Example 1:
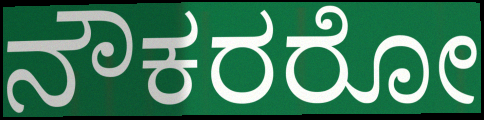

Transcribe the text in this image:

ನೌಕರರೋ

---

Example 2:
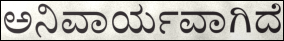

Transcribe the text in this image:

ಅನಿವಾರ್ಯವಾಗಿದೆ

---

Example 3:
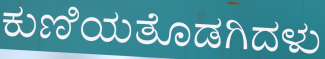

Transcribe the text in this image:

ಕುಣಿಯತೊಡಗಿದಳು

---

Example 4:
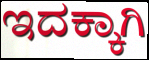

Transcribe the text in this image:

ಇದಕ್ಕಾಗಿ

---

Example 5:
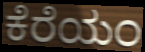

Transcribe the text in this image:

ಕೆರೆಯಂ